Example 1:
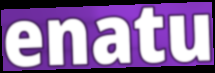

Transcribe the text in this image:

enatu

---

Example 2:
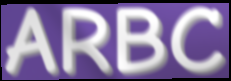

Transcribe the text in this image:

ARBC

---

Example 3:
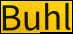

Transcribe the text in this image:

Buhl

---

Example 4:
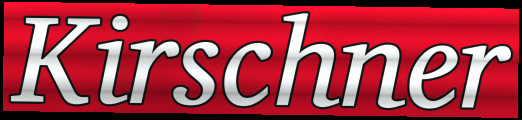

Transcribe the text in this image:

Kirschner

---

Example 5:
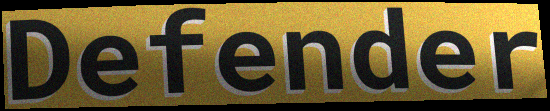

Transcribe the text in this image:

Defender